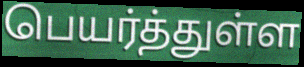
பெயர்த்துள்ள